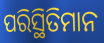
ପରିସ୍ଥିତିମାନ